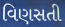
વિણસતી